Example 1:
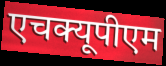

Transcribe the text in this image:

एचक्यूपीएम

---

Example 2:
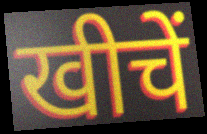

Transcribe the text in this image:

खीचें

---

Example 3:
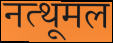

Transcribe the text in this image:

नत्थूमल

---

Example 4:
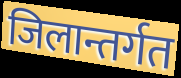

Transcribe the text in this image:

जिलान्तर्गत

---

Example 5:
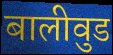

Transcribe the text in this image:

बालीवुड